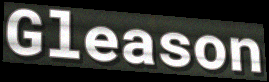
Gleason